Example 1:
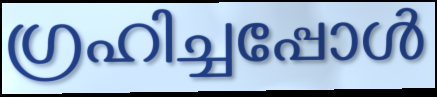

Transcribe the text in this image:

ഗ്രഹിച്ചപ്പോൾ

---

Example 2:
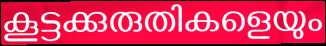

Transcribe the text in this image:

കൂട്ടക്കുരുതികളെയും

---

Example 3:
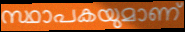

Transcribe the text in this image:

സ്ഥാപകയുമാണ്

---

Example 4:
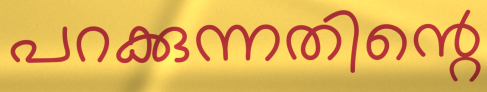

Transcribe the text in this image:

പറക്കുന്നതിന്റെ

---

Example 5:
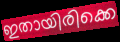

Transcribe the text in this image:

ഇതായിരിക്കെ